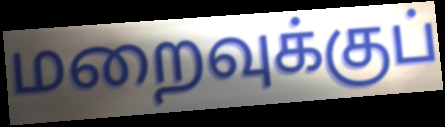
மறைவுக்குப்